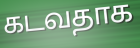
கடவதாக